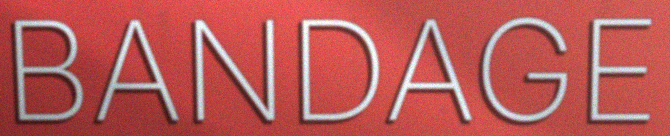
BANDAGE